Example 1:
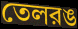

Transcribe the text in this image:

তেলরঙ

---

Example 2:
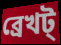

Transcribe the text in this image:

ব্রেখট্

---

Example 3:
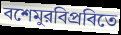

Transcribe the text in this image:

বশেমুরবিপ্রবিতে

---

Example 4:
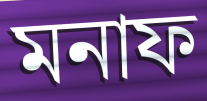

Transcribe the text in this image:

মনাফ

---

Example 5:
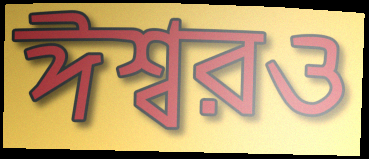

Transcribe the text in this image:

ঈশ্বরও